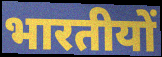
भारतीयों